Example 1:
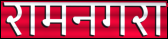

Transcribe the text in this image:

रामनगरा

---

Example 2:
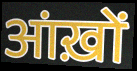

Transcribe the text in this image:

आंख़ों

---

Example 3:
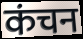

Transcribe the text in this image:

कंचन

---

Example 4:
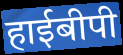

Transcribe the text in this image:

हाईबीपी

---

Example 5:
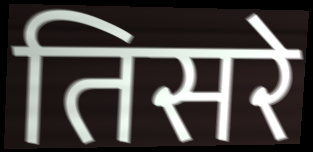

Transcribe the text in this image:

तिसरे